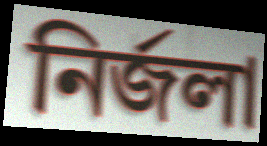
নির্জলা